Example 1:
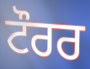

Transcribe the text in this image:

ਟੌਰਰ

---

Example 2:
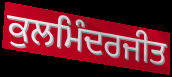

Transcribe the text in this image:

ਕੁਲਮਿੰਦਰਜੀਤ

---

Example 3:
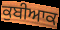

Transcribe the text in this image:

ਕੁਬੀਆਕ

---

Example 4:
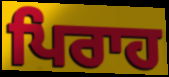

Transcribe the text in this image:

ਪਿਰਾਹ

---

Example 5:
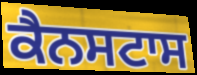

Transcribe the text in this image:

ਕੈਨਸਟਾਸ